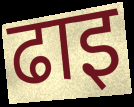
ढाइ